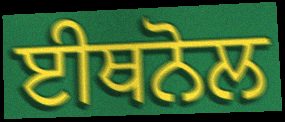
ਈਥਨੋਲ